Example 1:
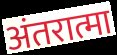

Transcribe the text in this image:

अंतरात्मा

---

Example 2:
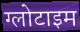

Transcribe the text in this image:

ग्लोटाइम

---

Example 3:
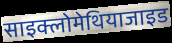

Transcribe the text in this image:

साइक्लोमेथियाजाइड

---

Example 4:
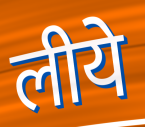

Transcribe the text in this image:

लीये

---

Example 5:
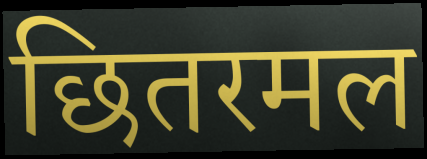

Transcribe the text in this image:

छितरमल